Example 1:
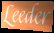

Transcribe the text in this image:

Leeder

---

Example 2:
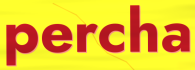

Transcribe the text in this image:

percha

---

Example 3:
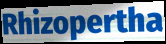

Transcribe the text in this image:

Rhizopertha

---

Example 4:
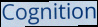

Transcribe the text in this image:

Cognition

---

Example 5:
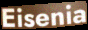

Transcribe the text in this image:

Eisenia